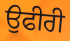
ਉਫੀਰੀ